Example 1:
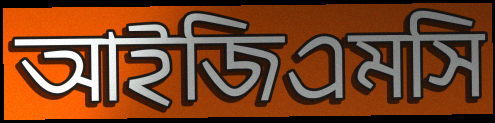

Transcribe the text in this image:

আইজিএমসি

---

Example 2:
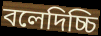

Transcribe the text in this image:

বলেদিচ্চি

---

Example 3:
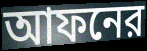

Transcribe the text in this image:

আফনের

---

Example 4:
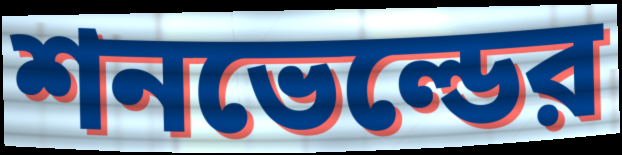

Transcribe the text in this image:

শনভেল্ডের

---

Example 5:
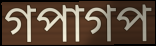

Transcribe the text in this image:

গপাগপ